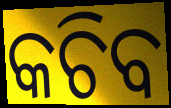
କଚିବ